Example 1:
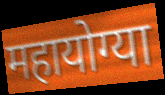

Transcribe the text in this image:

महायोग्या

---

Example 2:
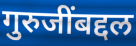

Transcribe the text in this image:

गुरुजींबद्दल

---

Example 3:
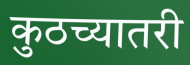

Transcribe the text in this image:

कुठच्यातरी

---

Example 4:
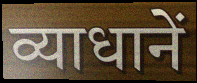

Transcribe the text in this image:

व्याधानें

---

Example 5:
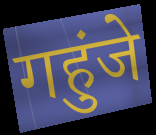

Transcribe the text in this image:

गहुंजे